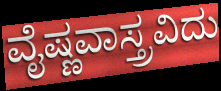
ವೈಷ್ಣವಾಸ್ತ್ರವಿದು